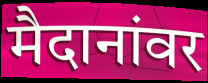
मैदानांवर